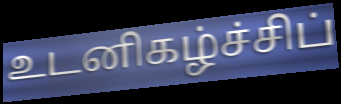
உடனிகழ்ச்சிப்